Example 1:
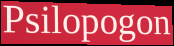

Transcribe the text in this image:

Psilopogon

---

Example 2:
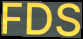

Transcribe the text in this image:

FDS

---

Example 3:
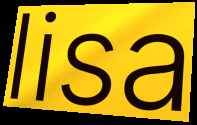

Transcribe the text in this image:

lisa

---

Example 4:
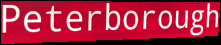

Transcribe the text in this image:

Peterborough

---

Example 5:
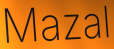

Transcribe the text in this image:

Mazal